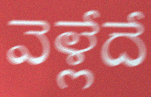
వెళ్లేదే